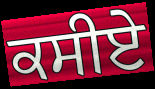
ਕਸੀਏ